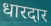
धारदार